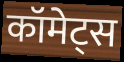
कॉमेट्स